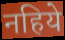
नहिये